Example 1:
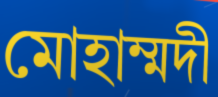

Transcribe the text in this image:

মোহাম্মদী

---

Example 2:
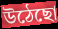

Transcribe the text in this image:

উঠেছো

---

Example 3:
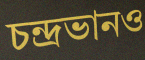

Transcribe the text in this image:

চন্দ্রভানও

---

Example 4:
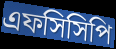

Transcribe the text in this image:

এফসিসিপি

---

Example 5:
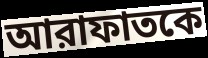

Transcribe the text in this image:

আরাফাতকে